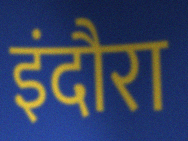
इंदौरा